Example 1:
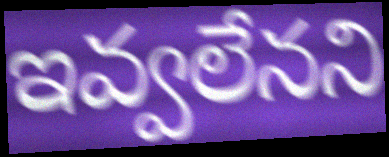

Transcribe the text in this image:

ఇవ్వలేనని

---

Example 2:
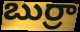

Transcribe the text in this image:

బుర్రా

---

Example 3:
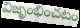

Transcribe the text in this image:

విజృంభించటం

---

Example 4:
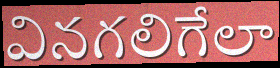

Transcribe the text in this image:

వినగలిగేలా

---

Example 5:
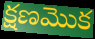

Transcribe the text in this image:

క్షణమొక